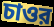
চাওর